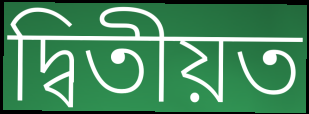
দ্বিতীয়ত